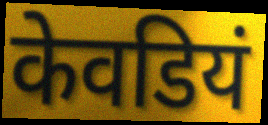
केवडियं